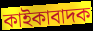
কাইকাবাদক